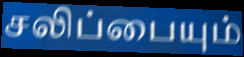
சலிப்பையும்